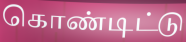
கொண்டிட்டு